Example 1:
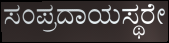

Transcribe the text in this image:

ಸಂಪ್ರದಾಯಸ್ಥರೇ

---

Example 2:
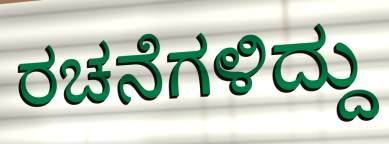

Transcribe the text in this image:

ರಚನೆಗಳಿದ್ದು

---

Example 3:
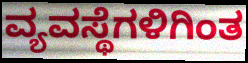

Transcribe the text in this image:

ವ್ಯವಸ್ಥೆಗಳಿಗಿಂತ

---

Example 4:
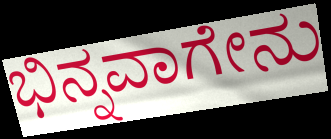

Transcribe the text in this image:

ಭಿನ್ನವಾಗೇನು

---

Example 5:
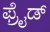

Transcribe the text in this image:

ಫ್ರೈಡ್